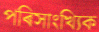
পৰিসাংখ্যিক